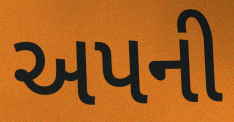
અપની